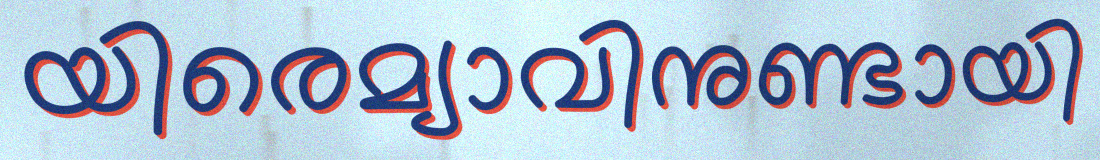
യിരെമ്യാവിനുണ്ടായി